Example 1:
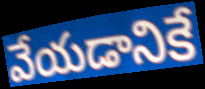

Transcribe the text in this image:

వేయడానికే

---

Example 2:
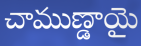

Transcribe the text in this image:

చాముణ్డాయై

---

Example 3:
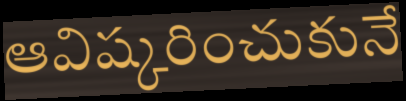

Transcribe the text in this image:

ఆవిష్కరించుకునే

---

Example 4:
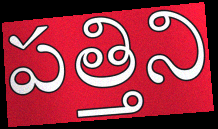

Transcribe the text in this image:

పత్తిని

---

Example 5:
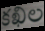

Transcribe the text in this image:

కఖిల